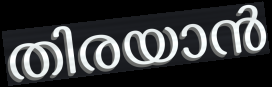
തിരയാൻ